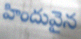
హిందువైన